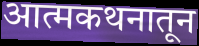
आत्मकथनातून